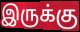
இருக்கு